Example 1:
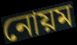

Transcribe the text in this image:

নোয়ম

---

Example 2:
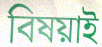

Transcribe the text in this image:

বিষয়াই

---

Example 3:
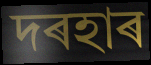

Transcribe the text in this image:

দৰহাৰ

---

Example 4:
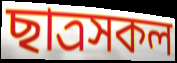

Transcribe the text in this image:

ছাত্ৰসকল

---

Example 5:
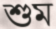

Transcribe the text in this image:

শুম